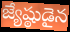
జ్యేష్ఠుడైన